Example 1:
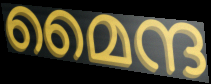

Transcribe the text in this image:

മൈന്ദ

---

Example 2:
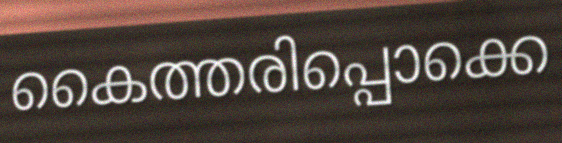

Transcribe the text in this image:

കൈത്തരിപ്പൊക്കെ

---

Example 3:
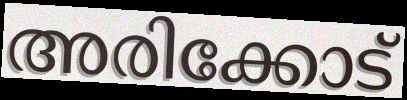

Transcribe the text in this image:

അരിക്കോട്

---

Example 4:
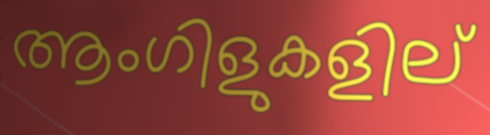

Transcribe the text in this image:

ആംഗിളുകളില്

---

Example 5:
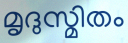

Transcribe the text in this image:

മൃദുസ്മിതം